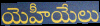
యెహీయేలు